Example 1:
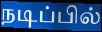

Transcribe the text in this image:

நடிப்பில்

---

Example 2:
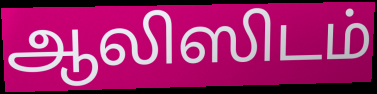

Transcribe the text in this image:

ஆலிஸிடம்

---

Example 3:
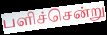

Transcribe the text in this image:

பளிச்சென்று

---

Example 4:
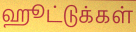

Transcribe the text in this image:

ஹூட்டுக்கள்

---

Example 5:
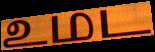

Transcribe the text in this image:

உமட